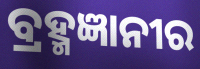
ବ୍ରହ୍ମଜ୍ଞାନୀର